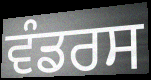
ਵੰਡਰਸ